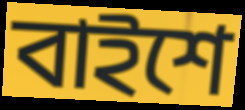
বাইশে